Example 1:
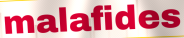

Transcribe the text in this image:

malafides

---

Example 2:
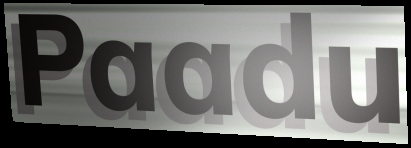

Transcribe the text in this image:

Paadu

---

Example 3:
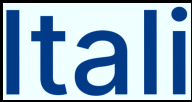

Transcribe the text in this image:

Itali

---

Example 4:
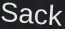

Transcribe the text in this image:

Sack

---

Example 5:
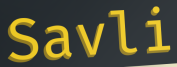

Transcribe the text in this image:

Savli